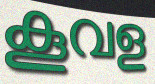
കൂവള